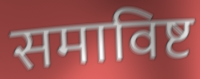
समाविष्ट